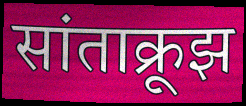
सांताक्रूझ